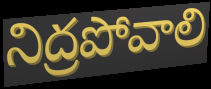
నిద్రపోవాలి